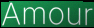
Amour